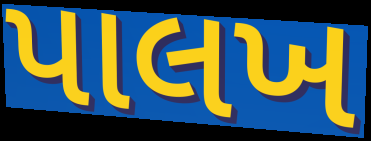
પાલખ